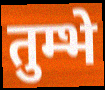
तुम्भे